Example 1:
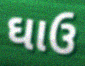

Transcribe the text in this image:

ઘાઉ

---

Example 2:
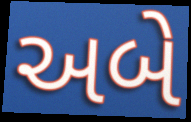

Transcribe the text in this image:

અબે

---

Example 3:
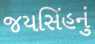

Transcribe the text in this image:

જયસિંહનું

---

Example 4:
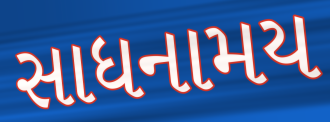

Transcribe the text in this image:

સાધનામય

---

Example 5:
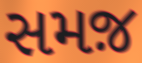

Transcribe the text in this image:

સમજ઼